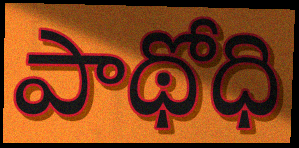
పాథోధి